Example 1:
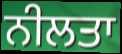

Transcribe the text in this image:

ਨੀਲਤਾ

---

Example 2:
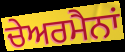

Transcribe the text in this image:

ਚੇਅਰਮੈਨਾਂ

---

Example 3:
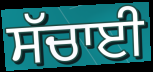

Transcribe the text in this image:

ਸੱਚਾਈ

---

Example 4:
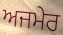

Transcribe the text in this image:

ਅਜਮੇਰ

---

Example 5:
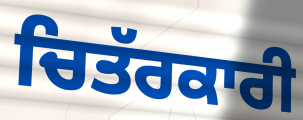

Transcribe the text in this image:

ਚਿਤੱਰਕਾਰੀ